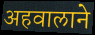
अहवालाने